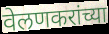
वेलणकरांच्या